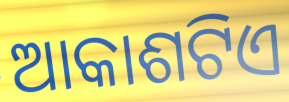
ଆକାଶଟିଏ